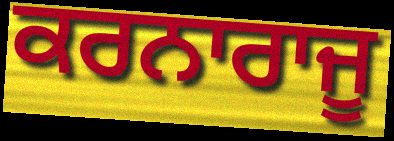
ਕਰਨਾਰਾਜੂ